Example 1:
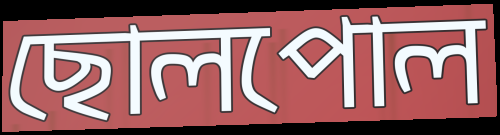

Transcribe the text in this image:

ছোলপোল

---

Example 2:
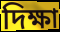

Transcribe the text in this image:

দিক্ষা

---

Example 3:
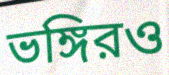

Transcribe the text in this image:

ভঙ্গিরও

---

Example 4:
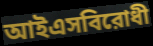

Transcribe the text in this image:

আইএসবিরোধী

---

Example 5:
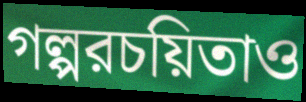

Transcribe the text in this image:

গল্পরচয়িতাও